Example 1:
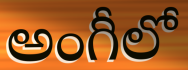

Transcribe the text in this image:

అంగీలో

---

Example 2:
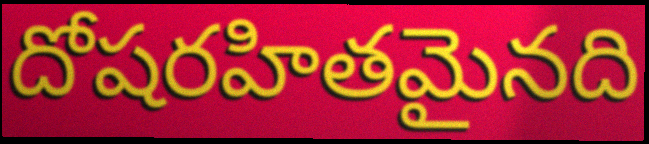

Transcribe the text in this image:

దోషరహితమైనది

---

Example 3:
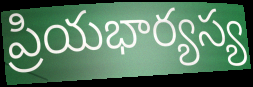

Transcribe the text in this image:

ప్రియభార్యస్య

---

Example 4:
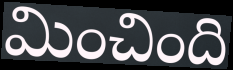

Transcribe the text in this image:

మించింది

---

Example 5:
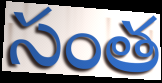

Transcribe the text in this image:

సంత